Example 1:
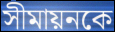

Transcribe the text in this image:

সীমায়নকে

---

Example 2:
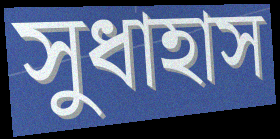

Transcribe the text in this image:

সুধাহাস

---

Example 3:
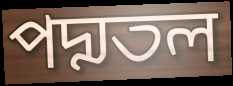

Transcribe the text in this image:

পদ্মতল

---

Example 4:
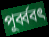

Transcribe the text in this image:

পূর্ব্ববৎ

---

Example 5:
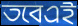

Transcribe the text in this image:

তবেএই